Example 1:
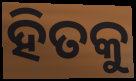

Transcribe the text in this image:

ହିତକୁ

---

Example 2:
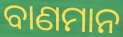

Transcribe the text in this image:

ବାଣମାନ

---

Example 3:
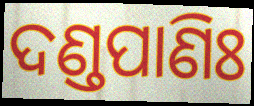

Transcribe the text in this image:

ଦଣ୍ଡପାଣିଃ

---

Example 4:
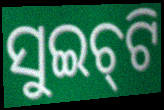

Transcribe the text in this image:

ସୁଇଚ୍‌ଟି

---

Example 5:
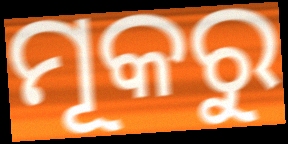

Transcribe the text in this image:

ମୂକରୁ